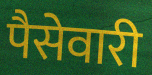
पैसेवारी